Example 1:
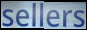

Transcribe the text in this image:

sellers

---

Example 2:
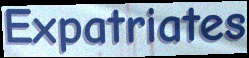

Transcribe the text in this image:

Expatriates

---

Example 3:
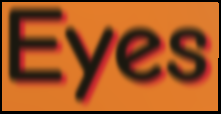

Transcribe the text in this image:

Eyes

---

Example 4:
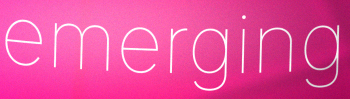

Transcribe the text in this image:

emerging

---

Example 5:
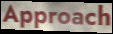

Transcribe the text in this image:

Approach